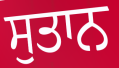
ਸੁਤਾਨ